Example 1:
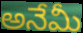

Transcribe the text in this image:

అనేమీ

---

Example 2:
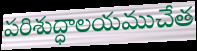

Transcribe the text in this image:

పరిశుద్ధాలయముచేత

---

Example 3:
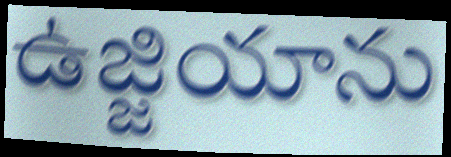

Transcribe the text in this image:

ఉజ్జియాను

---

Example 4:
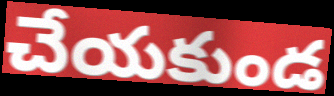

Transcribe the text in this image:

చేయకుండ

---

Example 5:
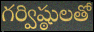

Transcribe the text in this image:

గర్విష్ఠులతో